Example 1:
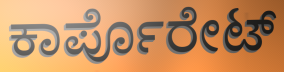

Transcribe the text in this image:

ಕಾರ್ಪೊರೇಟ್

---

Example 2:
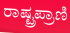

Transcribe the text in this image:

ರಾಷ್ಟ್ರಪ್ರಾಣಿ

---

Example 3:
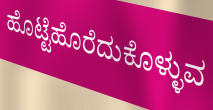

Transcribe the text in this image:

ಹೊಟ್ಟೆಹೊರೆದುಕೊಳ್ಳುವ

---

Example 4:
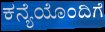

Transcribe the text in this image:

ಕನ್ಯೆಯೊಂದಿಗೆ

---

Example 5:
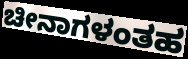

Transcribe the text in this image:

ಚೀನಾಗಳಂತಹ